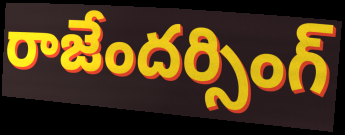
రాజేందర్సింగ్